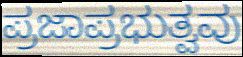
ಪ್ರಜಾಪ್ರಭುತ್ವವು